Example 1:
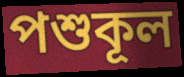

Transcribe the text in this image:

পশুকূল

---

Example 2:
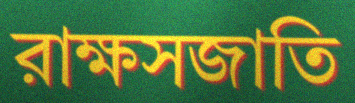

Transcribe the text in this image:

রাক্ষসজাতি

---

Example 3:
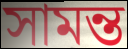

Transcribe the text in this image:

সামন্ত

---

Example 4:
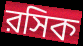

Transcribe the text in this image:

রসিক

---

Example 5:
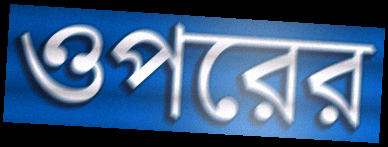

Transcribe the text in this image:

ওপরের